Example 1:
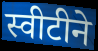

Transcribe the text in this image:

स्वीटीने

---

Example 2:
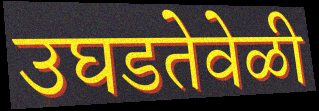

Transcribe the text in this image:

उघडतेवेळी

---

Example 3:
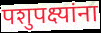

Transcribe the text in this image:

पशुपक्ष्यांना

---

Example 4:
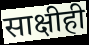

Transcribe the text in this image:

साक्षीही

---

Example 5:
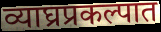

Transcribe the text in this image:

व्याघ्रप्रकल्पात